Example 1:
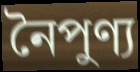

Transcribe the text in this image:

নৈপুণ্য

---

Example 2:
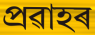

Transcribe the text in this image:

প্ৰৱাহৰ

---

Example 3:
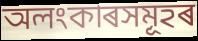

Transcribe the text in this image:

অলংকাৰসমূহৰ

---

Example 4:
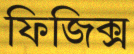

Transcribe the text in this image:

ফিজিক্স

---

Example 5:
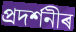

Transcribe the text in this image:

প্ৰদৰ্শনীৰ